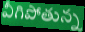
వీగిపోతున్న